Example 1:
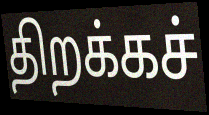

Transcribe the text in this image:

திறக்கச்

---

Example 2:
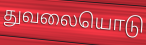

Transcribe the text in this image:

துவலையொடு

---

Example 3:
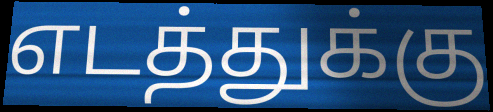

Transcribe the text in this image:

எடத்துக்கு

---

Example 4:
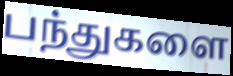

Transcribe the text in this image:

பந்துகளை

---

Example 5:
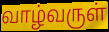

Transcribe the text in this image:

வாழ்வருள்